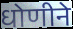
धोणीने